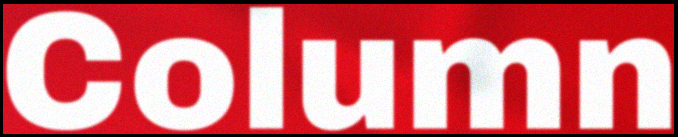
Column